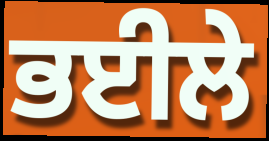
ਭਈਲੇ